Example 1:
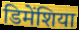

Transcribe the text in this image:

डिमेंशिया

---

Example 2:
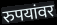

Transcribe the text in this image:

रुपयांवर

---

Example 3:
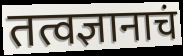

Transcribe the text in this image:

तत्वज्ञानाचं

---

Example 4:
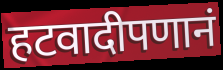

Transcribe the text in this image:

हटवादीपणानं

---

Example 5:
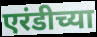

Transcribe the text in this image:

एरंडीच्या